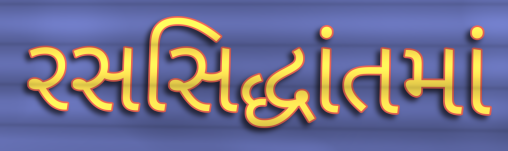
રસસિદ્ધાંતમાં